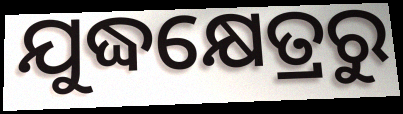
ଯୁଦ୍ଧକ୍ଷେତ୍ରରୁ